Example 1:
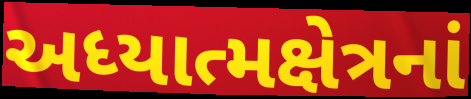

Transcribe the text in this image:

અધ્યાત્મક્ષેત્રનાં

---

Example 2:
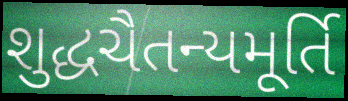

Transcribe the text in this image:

શુદ્ધચૈતન્યમૂર્તિ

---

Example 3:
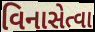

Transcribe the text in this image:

વિનાસેત્વા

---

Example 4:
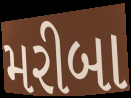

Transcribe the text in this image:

મરીબા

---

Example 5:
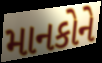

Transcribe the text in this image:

માનકોને